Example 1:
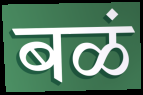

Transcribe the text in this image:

बळं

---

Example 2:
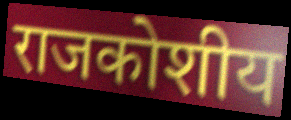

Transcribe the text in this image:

राजकोशीय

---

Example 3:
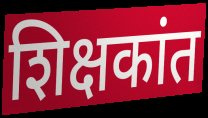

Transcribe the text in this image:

शिक्षकांत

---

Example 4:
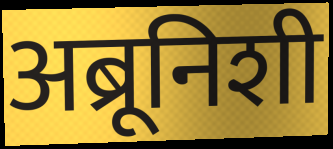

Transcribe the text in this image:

अब्रूनिशी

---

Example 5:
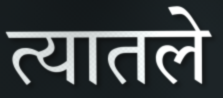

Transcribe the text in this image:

त्यातले